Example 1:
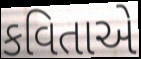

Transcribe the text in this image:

કવિતાએ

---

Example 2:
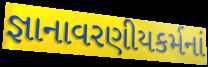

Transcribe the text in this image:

જ્ઞાનાવરણીયકર્મનાં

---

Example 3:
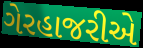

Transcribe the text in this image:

ગેરહાજરીએ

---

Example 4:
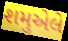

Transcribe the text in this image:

શમુએલે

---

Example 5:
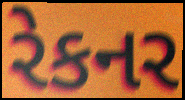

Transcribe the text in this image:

રેકનર